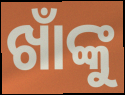
ଖାଁଙ୍କୁ